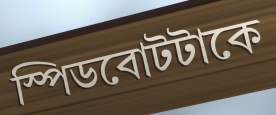
স্পিডবোটটাকে